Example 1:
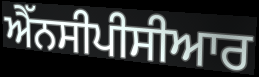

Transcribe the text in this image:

ਐੱਨਸੀਪੀਸੀਆਰ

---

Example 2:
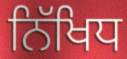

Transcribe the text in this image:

ਨਿੱਖਿਧ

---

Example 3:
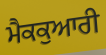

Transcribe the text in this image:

ਮੈਕਕੁਆਰੀ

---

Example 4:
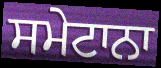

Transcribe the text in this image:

ਸਮੇਟਾਨਾ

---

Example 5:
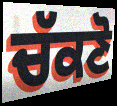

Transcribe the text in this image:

ਚੱਕਣੋ